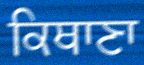
ਕਿਥਾਣਾ